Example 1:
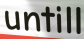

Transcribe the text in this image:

untill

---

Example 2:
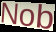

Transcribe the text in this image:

Nob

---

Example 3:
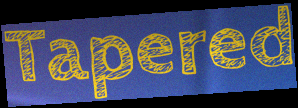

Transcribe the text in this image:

Tapered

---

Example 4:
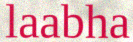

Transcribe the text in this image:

laabha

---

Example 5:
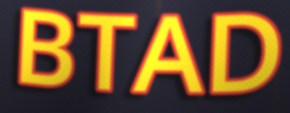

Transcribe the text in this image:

BTAD